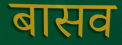
बासव